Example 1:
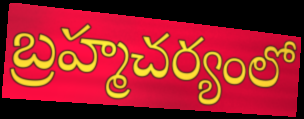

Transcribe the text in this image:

బ్రహ్మచర్యంలో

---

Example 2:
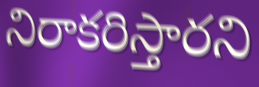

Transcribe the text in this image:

నిరాకరిస్తారని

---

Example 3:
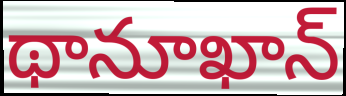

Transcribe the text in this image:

థానూఖాన్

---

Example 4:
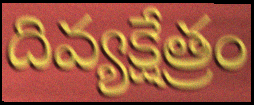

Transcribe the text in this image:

దివ్యక్షేత్రం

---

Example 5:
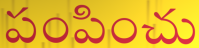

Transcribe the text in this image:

పంపించు